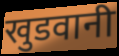
खुडवानी